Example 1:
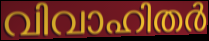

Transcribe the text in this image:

വിവാഹിതർ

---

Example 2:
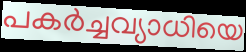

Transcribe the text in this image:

പകർച്ചവ്യാധിയെ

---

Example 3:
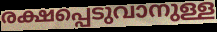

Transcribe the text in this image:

രക്ഷപ്പെടുവാനുള്ള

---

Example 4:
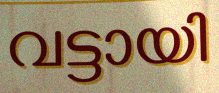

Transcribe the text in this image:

വട്ടായി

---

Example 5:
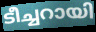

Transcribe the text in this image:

ടീച്ചറായി